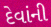
દેવાંની